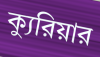
ক্যুরিয়ার